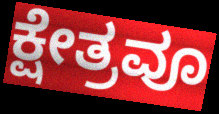
ಕ್ಷೇತ್ರವೂ